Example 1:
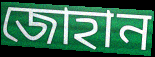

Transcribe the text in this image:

জোহান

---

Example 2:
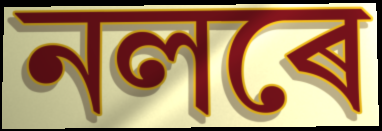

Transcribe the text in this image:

নলৰে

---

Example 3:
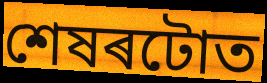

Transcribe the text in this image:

শেষৰটোত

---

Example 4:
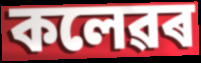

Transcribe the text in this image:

কলেৱৰ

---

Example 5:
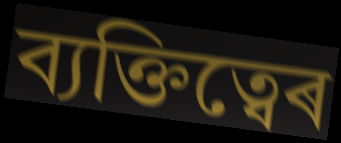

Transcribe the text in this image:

ব্যক্তিত্বেৰ